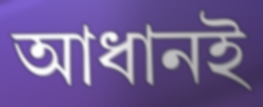
আধানই